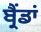
ਬ੍ਰੈਂਡਾਂ